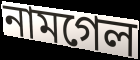
নামগেল